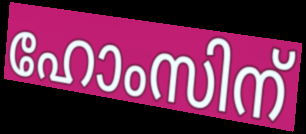
ഹോംസിന്